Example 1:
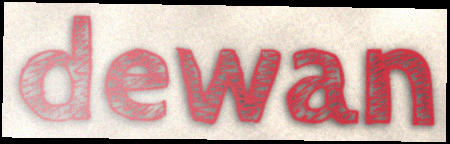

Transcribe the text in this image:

dewan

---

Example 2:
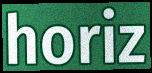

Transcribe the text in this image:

horiz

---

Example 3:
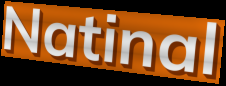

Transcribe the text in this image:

Natinal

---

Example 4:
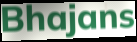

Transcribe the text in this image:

Bhajans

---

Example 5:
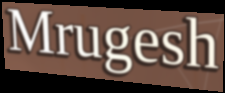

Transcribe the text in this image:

Mrugesh